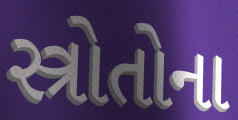
સ્ત્રોતોના